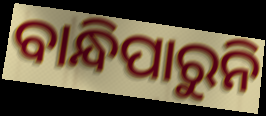
ବାନ୍ଧିପାରୁନି